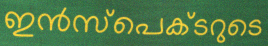
ഇൻസ്പെക്ടറുടെ